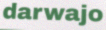
darwajo